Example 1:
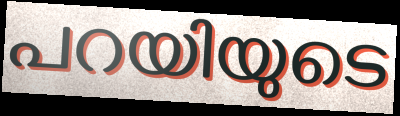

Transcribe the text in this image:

പറയിയുടെ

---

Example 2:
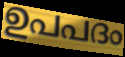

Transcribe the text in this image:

ഉപപദം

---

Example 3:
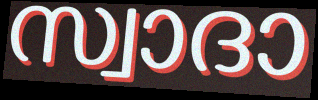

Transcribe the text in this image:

സ്വാദാ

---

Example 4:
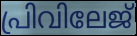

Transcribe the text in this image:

പ്രിവിലേജ്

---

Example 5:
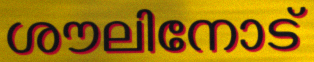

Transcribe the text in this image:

ശൗലിനോട്